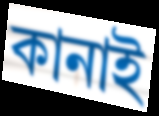
কানাই